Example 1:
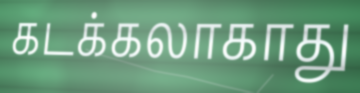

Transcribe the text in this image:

கடக்கலாகாது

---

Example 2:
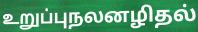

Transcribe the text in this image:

உறுப்புநலனழிதல்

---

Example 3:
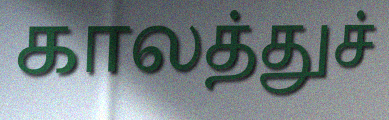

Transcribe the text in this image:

காலத்துச்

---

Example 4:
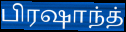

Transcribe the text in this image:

பிரஷாந்த்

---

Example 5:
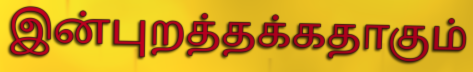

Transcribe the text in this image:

இன்புறத்தக்கதாகும்